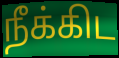
நீக்கிட